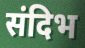
संदिभ